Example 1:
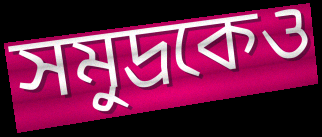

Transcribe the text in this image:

সমুদ্রকেও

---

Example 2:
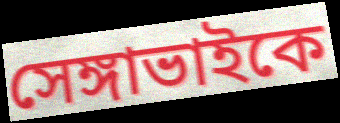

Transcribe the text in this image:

সেঙ্গাভাইকে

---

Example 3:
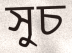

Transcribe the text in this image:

সুচ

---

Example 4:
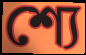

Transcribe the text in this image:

শ্যে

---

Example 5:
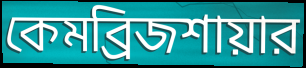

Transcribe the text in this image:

কেমব্রিজশায়ার